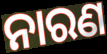
ନାରଣ